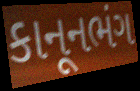
કાનૂનભંગ